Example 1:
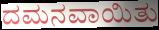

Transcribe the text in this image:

ದಮನವಾಯಿತು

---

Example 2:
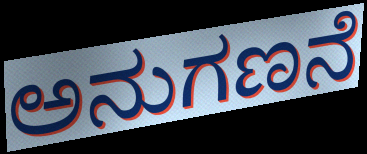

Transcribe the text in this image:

ಅನುಗಣನೆ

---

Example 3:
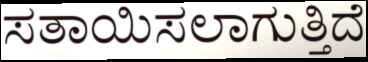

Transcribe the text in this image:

ಸತಾಯಿಸಲಾಗುತ್ತಿದೆ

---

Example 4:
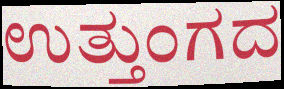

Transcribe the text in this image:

ಉತ್ತುಂಗದ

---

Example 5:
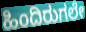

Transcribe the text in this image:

ಹಿಂದಿರುಗಲೇ